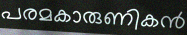
പരമകാരുണികൻ